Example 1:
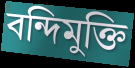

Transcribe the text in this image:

বন্দিমুক্তি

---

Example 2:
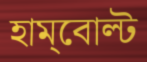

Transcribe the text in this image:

হাম্‌বোল্ট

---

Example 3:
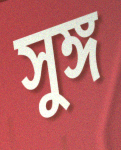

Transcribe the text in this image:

সুঙ্গ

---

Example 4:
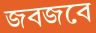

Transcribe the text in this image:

জবজবে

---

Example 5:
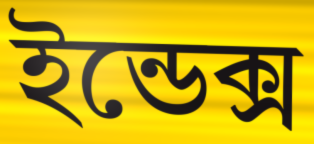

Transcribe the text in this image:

ইন্ডেক্স